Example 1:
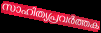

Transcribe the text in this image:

സാഹിത്യപ്രവർത്തക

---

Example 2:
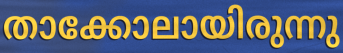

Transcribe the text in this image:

താക്കോലായിരുന്നു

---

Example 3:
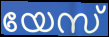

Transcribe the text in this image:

യേസ്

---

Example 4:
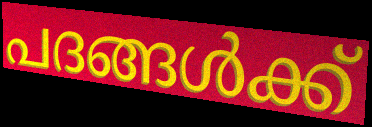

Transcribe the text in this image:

പദങ്ങൾക്ക്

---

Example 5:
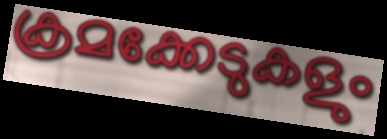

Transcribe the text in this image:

ക്രമക്കേടുകളും